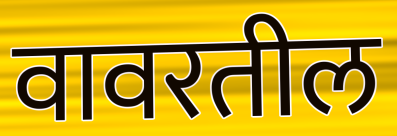
वावरतील